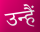
उन्‍हैं